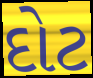
દોટ